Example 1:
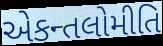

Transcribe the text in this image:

એકન્તલોમીતિ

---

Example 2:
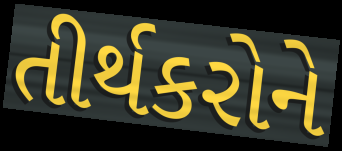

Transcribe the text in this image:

તીર્થકરોને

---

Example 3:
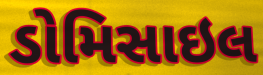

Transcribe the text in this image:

ડોમિસાઇલ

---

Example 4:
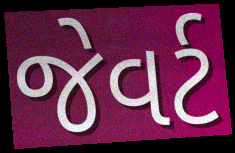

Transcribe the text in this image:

જેવર્ટ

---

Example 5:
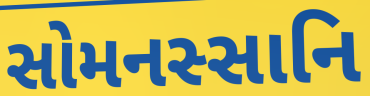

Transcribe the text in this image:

સોમનસ્સાનિ